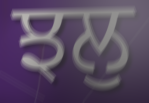
ਝਲੁ